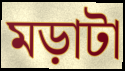
মড়াটা